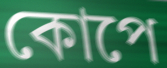
কোপে